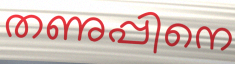
തണുപ്പിനെ